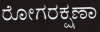
ರೋಗರಕ್ಷಣಾ